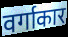
वर्गाकार